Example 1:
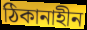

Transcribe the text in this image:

ঠিকানাহীন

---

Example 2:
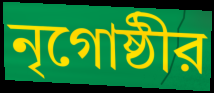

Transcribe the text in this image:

নৃগোষ্ঠীর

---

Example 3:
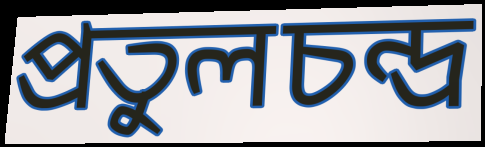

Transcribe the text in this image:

প্রতুলচন্দ্র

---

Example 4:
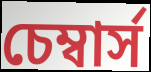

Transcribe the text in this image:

চেম্বার্স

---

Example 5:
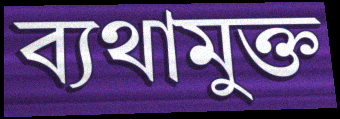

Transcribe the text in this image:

ব্যথামুক্ত